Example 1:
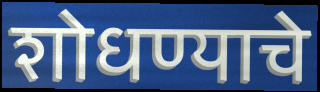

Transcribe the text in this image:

शोधण्याचे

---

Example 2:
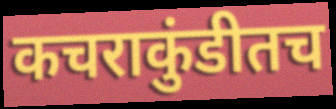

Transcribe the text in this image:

कचराकुंडीतच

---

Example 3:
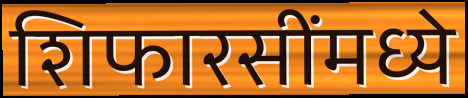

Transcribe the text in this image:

शिफारसींमध्ये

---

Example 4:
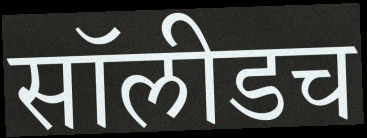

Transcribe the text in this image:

सॉलीडच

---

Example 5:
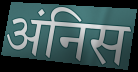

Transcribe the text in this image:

अंनिस